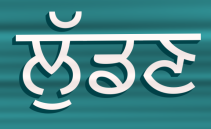
ਲੁੱਡਣ